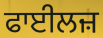
ਫਾਈਲਜ਼